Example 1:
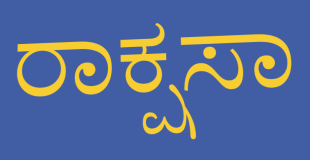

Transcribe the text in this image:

ರಾಕ್ಷಸಾ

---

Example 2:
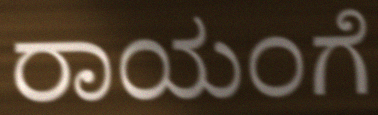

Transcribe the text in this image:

ರಾಯಂಗೆ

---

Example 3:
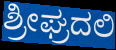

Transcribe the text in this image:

ಶ್ರೀಘ್ರದಲಿ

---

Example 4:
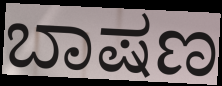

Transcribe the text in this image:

ಬಾಷಣ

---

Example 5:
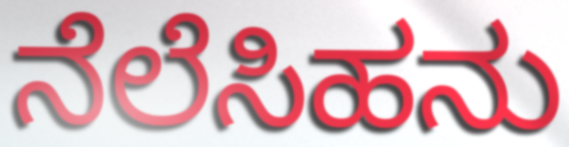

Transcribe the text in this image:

ನೆಲೆಸಿಹನು